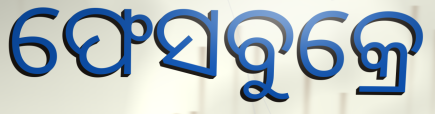
ଫେସବୁକ୍ରେ